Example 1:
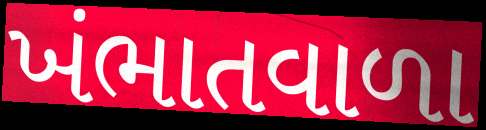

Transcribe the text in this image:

ખંભાતવાળા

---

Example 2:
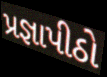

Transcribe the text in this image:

પ્રજ્ઞાપીઠો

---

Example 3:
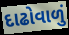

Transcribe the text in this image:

દાઢોવાળું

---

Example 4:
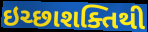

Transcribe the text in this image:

ઇચ્છાશક્તિથી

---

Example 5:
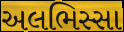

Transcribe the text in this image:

અલભિસ્સા